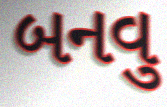
બનવુ